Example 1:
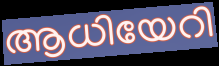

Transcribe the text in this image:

ആധിയേറി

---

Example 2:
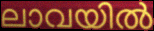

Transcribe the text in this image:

ലാവയിൽ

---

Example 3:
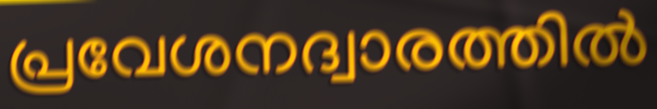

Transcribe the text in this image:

പ്രവേശനദ്വാരത്തിൽ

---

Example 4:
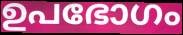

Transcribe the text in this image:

ഉപഭോഗം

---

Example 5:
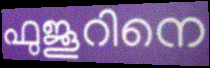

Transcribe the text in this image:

ഫുജൂറിനെ